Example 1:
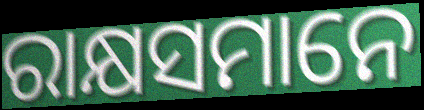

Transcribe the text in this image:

ରାକ୍ଷସମାନେ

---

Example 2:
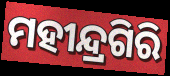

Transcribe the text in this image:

ମହୀନ୍ଦ୍ରଗିରି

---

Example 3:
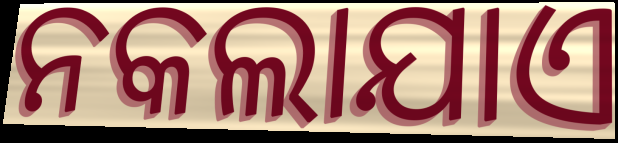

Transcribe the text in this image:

ନକଲାଯାଏ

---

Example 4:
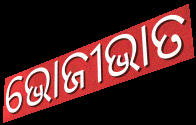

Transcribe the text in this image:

ଭୋଜୀଭାତ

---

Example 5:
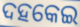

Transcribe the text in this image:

ଦହକେଇ